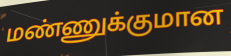
மண்ணுக்குமான